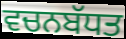
ਵਚਨਬੱਧਤ